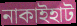
নাকাইহাট